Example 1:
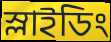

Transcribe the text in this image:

স্লাইডিং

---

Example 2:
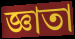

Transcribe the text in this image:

জ্ঞাতা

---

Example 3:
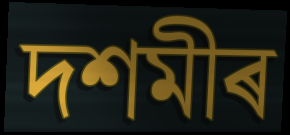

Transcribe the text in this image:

দশমীৰ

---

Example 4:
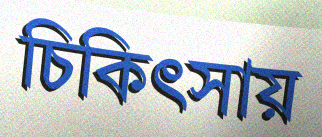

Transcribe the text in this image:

চিকিৎসায়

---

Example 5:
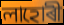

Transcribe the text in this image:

লাহোৰী